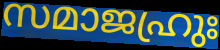
സമാജഹ്രുഃ